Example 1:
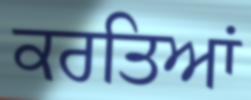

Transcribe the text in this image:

ਕਰਤਿਆਂ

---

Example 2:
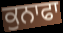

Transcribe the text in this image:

ਕੁਨਾਫਾ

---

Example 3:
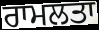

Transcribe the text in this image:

ਰਾਮਲਤਾ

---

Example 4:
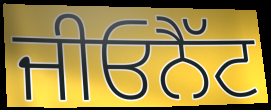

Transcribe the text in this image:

ਜੀਓਨੈੱਟ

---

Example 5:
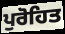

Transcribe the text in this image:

ਪੁਰੋਹਿਤ